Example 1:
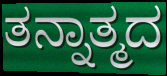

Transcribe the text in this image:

ತನ್ನಾತ್ಮದ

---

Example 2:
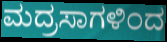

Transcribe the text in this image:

ಮದ್ರಸಾಗಳಿಂದ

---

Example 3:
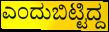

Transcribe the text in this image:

ಎಂದುಬಿಟ್ಟಿದ್ದ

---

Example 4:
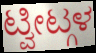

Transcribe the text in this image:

ಟ್ವೀಟ್ಗಳ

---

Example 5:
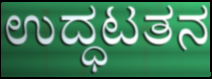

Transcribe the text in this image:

ಉದ್ಧಟತನ